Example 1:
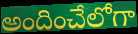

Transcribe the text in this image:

అందించేలోగా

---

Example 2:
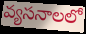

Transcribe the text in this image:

వ్యసనాలలో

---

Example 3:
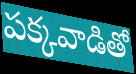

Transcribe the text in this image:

పక్కవాడితో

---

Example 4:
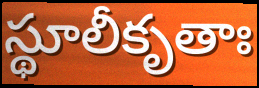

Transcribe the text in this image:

స్థూలీకృతాః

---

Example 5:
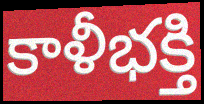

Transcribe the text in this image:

కాళీభక్తి